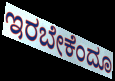
ಇರಬೇಕೆಂದೂ